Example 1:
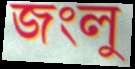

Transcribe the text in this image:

জংলু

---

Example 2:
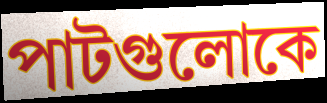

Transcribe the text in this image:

পাটগুলোকে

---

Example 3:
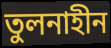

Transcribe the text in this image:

তুলনাহীন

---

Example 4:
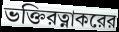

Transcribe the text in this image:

ভক্তিরত্নাকরের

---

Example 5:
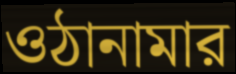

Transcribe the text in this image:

ওঠানামার